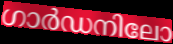
ഗാർഡനിലോ